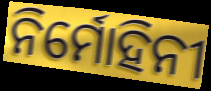
ନିର୍ମୋହିନୀ